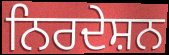
ਨਿਰਦੇਸ਼ਨ